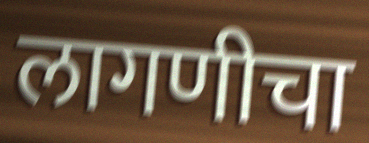
लागणीचा